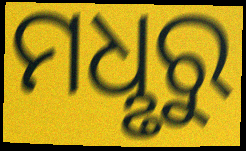
ମଧୢରୁ